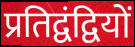
प्रतिद्वंद्वियों